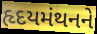
હૃદયમંથનને